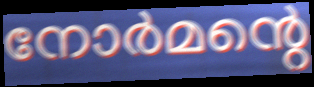
നോർമന്റെ